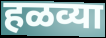
हळव्या